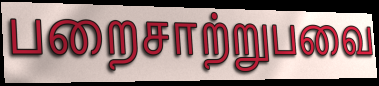
பறைசாற்றுபவை